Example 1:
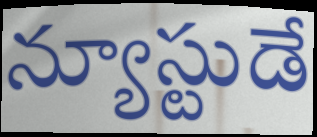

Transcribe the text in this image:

న్యూస్టుడే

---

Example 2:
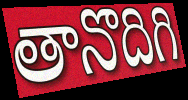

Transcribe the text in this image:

తానొదిగి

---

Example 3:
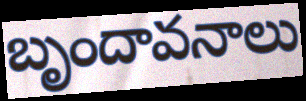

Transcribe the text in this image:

బృందావనాలు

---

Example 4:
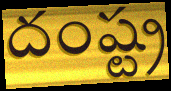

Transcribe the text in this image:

దంష్ట్ర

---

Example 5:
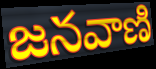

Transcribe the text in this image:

జనవాణి